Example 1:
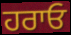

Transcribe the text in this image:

ਹਰਾਓ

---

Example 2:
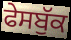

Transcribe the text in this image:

ਫੇਸਬੁੱਕ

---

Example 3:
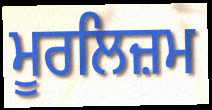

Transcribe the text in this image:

ਮੂਰਲਿਜ਼ਮ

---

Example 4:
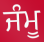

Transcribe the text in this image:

ਜੰਮੂ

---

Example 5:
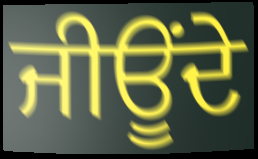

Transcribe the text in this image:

ਜੀਊਂਦੇ